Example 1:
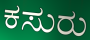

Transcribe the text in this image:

ಕಸುರು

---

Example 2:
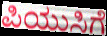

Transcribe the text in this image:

ಪಿಯುಸಿಗೆ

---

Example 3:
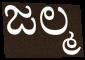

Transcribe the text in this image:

ಜಲ್ಮ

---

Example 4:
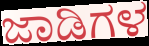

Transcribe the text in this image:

ಜಾಡಿಗಳ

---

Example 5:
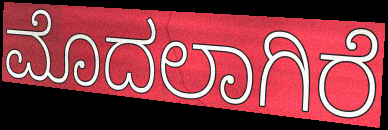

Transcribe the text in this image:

ಮೊದಲಾಗಿರೆ